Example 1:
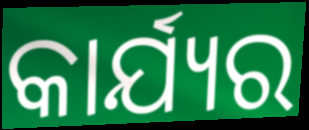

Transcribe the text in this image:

କାର୍ଯ୍ୟର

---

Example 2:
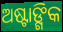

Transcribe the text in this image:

ଅଷ୍ଟାଙ୍ଗିକ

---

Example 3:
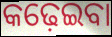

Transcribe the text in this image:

କଢ଼େଇବା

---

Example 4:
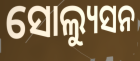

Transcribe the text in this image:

ସୋଲ୍ୟୁସନ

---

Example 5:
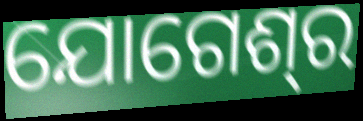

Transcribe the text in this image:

ଯୋଗେଶ୍‍ର